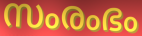
സംരംഭം